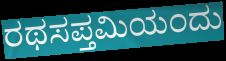
ರಥಸಪ್ತಮಿಯಂದು